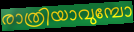
രാത്രിയാവുമ്പോ